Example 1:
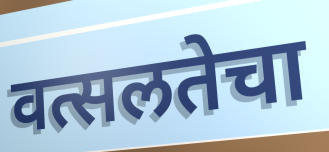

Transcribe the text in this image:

वत्सलतेचा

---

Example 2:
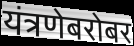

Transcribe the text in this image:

यंत्रणेबरोबर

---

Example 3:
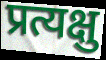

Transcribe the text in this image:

प्रत्यक्षु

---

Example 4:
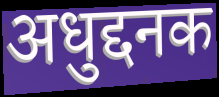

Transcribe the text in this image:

अधुद्दनक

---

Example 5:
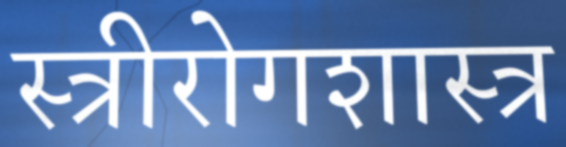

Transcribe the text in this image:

स्त्रीरोगशास्त्र